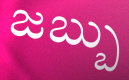
జబ్బు